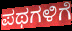
ಪಥಗಳಿಗೆ